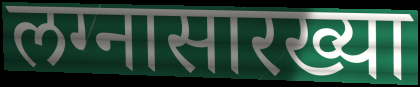
लग्नासारख्या